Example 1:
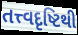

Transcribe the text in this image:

તત્ત્વદૃષ્ટિથી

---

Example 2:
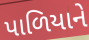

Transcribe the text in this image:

પાળિયાને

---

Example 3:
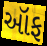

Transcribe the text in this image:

ઑફ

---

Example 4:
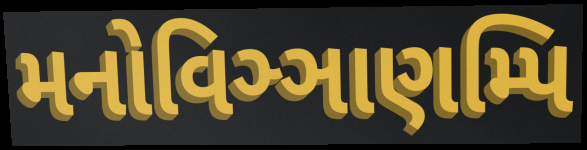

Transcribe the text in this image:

મનોવિઞ્ઞાણમ્પિ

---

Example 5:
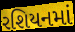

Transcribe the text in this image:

રશિયનમાં